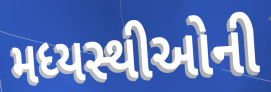
મધ્યસ્થીઓની